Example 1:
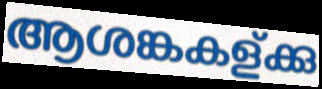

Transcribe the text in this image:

ആശങ്കകള്ക്കു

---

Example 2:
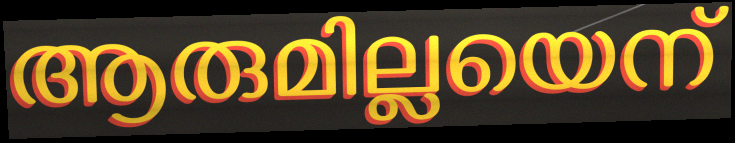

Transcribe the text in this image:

ആരുമില്ലയെന്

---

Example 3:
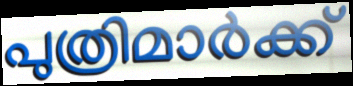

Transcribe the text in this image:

പുത്രിമാർക്ക്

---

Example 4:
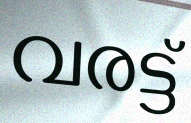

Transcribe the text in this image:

വരട്ട്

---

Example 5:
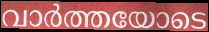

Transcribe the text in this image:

വാർത്തയോടെ